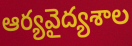
ఆర్యవైద్యశాల